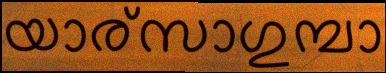
യാര്സാഗുമ്പാ